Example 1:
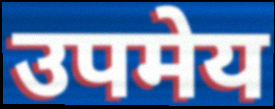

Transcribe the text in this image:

उपमेय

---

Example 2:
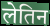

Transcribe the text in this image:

लेतिन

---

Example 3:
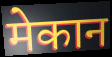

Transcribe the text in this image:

मेकान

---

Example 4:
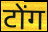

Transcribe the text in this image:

टोंग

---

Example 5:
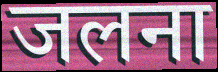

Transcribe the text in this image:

जलना